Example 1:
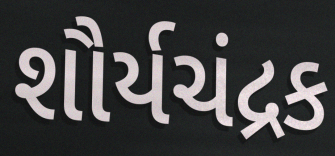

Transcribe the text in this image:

શૌર્યચંદ્રક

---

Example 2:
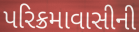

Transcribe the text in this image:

પરિક્રમાવાસીની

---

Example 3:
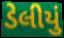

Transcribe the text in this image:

ડેલીયું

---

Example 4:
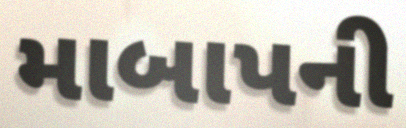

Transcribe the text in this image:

માબાપની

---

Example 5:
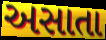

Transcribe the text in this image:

અસાતા